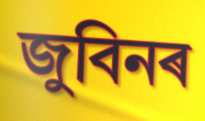
জুবিনৰ